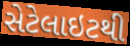
સેટેલાઇટથી